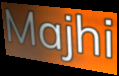
Majhi